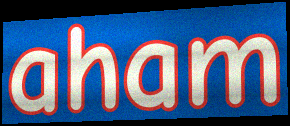
aham